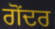
ਗੋਂਦਰ